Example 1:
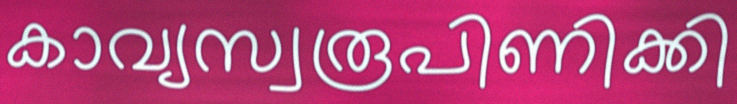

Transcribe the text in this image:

കാവ്യസ്വരൂപിണിക്കി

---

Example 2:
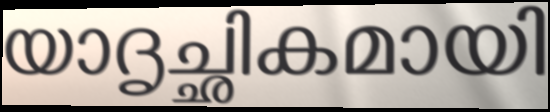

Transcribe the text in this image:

യാദൃച്ഛികമായി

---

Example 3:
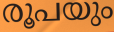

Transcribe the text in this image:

രൂപയും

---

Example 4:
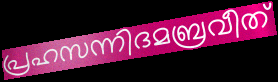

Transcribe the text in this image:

പ്രഹസന്നിദമബ്രവീത്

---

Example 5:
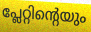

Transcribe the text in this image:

പ്ലേറ്റിന്റെയും